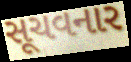
સૂચવનાર